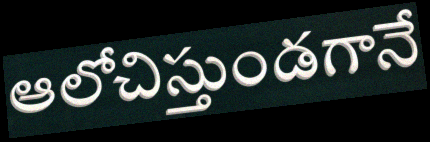
ఆలోచిస్తుండగానే